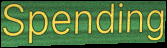
Spending